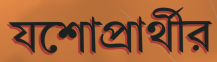
যশোপ্রার্থীর